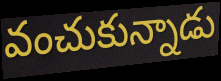
వంచుకున్నాడు